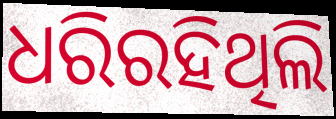
ଧରିରହିଥିଲି